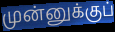
முன்னுக்குப்